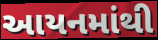
આયનમાંથી